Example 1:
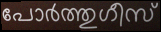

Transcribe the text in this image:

പോർത്തുഗീസ്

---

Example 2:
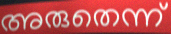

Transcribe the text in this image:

അരുതെന്ന്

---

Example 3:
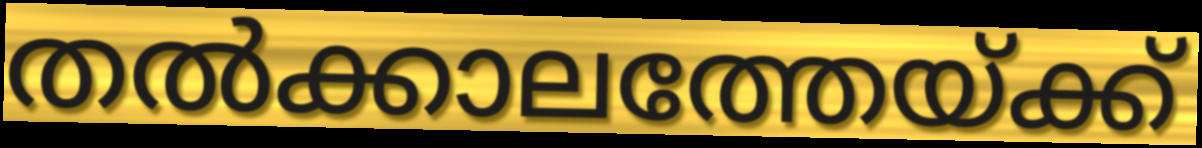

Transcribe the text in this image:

തൽക്കാലത്തേയ്ക്ക്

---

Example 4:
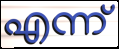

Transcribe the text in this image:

എന്ന്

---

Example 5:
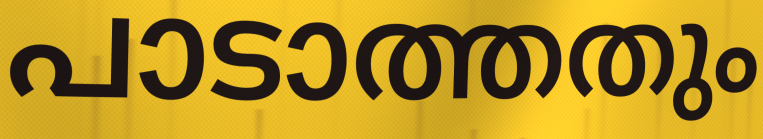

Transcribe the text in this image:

പാടാത്തതും